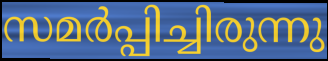
സമർപ്പിച്ചിരുന്നു